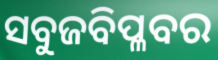
ସବୁଜବିପ୍ଳବର